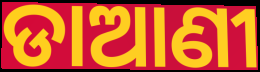
ଡାଆଣୀ